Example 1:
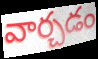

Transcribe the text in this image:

వార్చడం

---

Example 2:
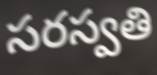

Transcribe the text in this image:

సరస్వతి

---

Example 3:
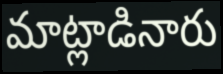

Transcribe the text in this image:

మాట్లాడినారు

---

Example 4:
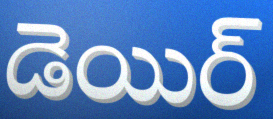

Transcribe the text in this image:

డెయిర్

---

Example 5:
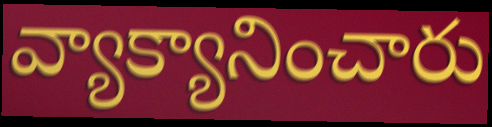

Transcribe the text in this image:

వ్యాక్యానించారు